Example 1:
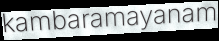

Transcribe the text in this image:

kambaramayanam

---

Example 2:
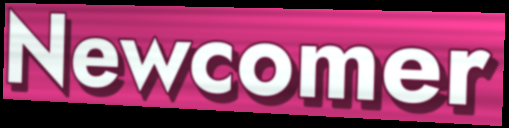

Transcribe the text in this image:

Newcomer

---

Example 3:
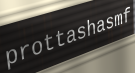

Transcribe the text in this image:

prottashasmf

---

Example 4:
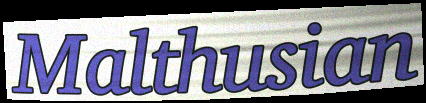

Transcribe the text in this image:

Malthusian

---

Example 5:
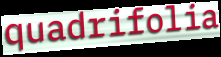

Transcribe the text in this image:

quadrifolia